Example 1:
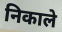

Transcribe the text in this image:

निकाले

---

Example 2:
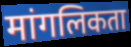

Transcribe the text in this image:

मांगलिकता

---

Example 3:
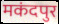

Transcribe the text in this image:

मकंदपुर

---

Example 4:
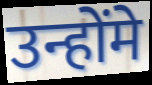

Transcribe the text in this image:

उन्होंमे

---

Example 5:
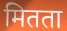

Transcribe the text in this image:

मितता